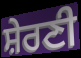
ਸ਼ੇਰਣੀ